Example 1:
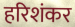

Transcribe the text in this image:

हरिशंकर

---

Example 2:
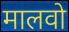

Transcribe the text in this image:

मालवो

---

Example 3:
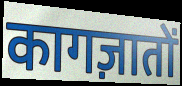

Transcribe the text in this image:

कागज़ातों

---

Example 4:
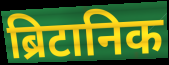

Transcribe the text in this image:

ब्रिटानिक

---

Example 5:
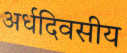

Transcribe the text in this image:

अर्धदिवसीय